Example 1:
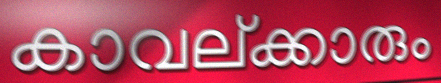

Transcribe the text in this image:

കാവല്ക്കാരും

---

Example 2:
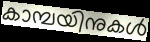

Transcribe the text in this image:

കാമ്പയിനുകൾ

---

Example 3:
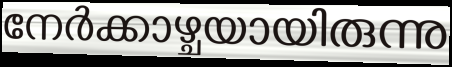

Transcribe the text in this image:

നേർക്കാഴ്ചയായിരുന്നു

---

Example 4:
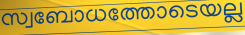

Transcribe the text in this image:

സ്വബോധത്തോടെയല്ല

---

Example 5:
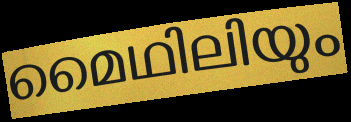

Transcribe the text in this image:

മൈഥിലിയും